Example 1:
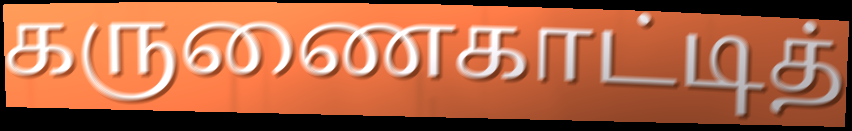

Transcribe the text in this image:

கருணைகாட்டித்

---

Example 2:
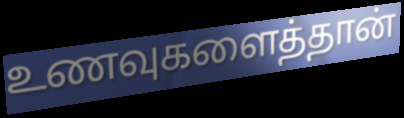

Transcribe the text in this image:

உணவுகளைத்தான்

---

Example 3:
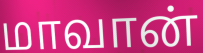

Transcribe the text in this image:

மாவான்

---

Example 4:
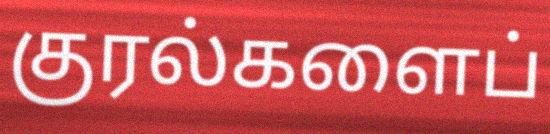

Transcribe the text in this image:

குரல்களைப்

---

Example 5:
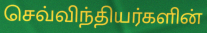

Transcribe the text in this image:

செவ்விந்தியர்களின்